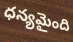
ధన్యమైంది